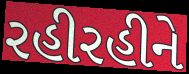
રહીરહીને